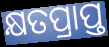
କ୍ଷତପ୍ରାପ୍ତ